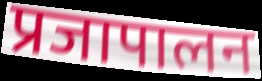
प्रजापालन